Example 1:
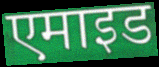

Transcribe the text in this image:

एमाइड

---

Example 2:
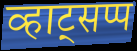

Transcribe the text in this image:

व्हाट्सप्प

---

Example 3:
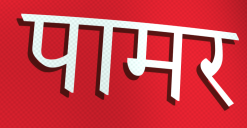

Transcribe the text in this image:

पामर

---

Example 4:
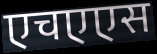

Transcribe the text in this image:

एचएएस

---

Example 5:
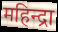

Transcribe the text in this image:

महिन्द्रा